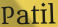
Patil